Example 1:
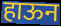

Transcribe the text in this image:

हाऊन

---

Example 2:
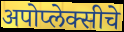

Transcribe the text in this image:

अपोप्लेक्सीचे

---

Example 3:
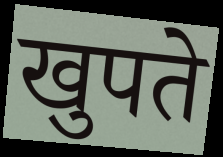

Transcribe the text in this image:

खुपते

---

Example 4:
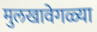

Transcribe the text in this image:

मुलखावेगळ्या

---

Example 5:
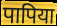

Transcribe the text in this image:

पापिया